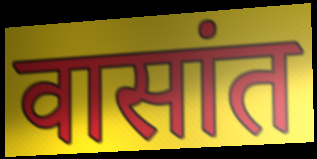
वासांत